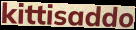
kittisaddo